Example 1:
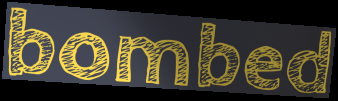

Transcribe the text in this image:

bombed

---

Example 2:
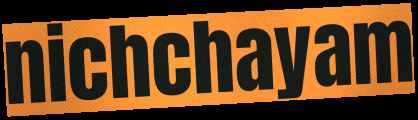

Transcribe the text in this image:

nichchayam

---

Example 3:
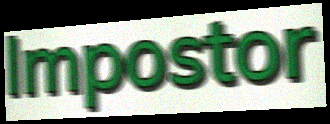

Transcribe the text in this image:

Impostor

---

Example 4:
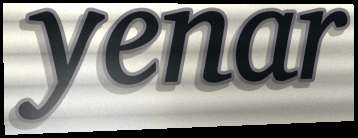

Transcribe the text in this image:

yenar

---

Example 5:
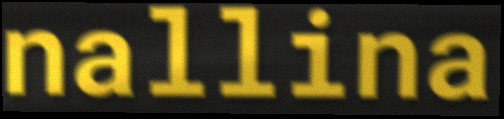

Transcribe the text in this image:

nallina